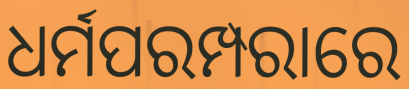
ଧର୍ମପରମ୍ପରାରେ